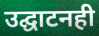
उद्घाटनही